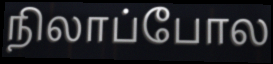
நிலாப்போல